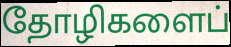
தோழிகளைப்